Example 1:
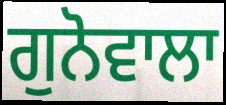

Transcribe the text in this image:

ਗੁਨੋਵਾਲਾ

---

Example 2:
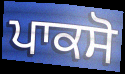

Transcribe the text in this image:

ਪਾਕਸੋ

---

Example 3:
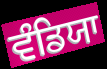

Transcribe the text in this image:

ਵੰਡਿਯਾ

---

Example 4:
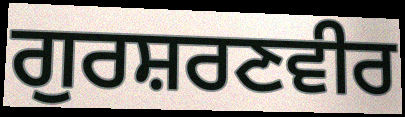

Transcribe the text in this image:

ਗੁਰਸ਼ਰਣਵੀਰ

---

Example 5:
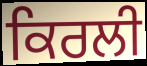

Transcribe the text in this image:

ਕਿਰਲੀ